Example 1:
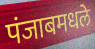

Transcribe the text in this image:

पंजाबमधले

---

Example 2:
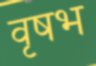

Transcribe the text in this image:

वृषभ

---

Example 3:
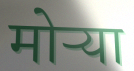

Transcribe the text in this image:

मोऱ्या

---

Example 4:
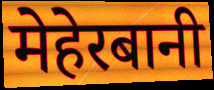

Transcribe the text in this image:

मेहेरबानी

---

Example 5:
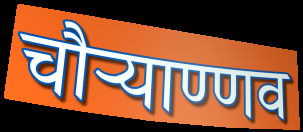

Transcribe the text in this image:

चौऱ्याण्णव